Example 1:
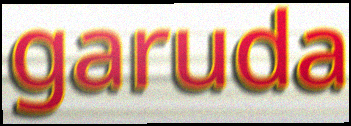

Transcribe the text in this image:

garuda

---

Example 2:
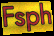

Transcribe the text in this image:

Fsph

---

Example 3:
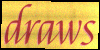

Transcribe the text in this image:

draws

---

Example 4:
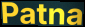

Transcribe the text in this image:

Patna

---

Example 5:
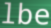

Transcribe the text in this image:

lbe